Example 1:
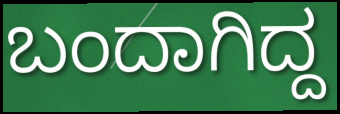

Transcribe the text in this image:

ಬಂದಾಗಿದ್ದ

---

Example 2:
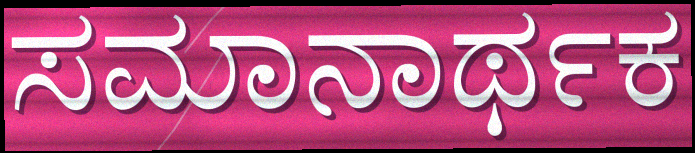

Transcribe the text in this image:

ಸಮಾನಾರ್ಥಕ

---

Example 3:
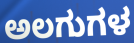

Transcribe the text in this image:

ಅಲಗುಗಳ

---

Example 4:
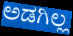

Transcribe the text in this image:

ಅಡಗಿಲ್ಲ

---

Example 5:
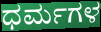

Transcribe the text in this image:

ಧರ್ಮಗಳ